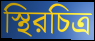
স্থিরচিত্র